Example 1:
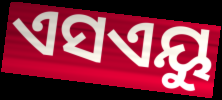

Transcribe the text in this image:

ଏସଏୟୁ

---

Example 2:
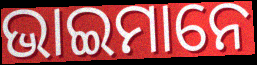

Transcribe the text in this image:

ଭାଇମାନେ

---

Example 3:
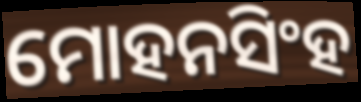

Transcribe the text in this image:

ମୋହନସିଂହ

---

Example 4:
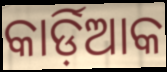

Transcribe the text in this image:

କାର୍ଡ଼ିଆକ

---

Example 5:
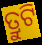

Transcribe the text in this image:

ତ୍ରୁଟି